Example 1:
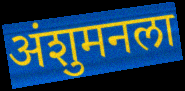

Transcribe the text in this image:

अंशुमनला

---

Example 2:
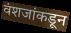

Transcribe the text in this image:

वंशजांकडून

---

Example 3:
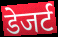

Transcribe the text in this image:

डेजर्ट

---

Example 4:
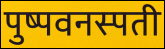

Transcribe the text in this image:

पुष्पवनस्पती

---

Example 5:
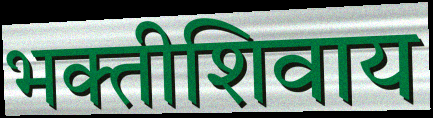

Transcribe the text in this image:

भक्तीशिवाय